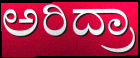
ಅರಿದ್ರಾ